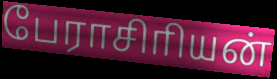
பேராசிரியன்